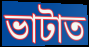
ভাটাত